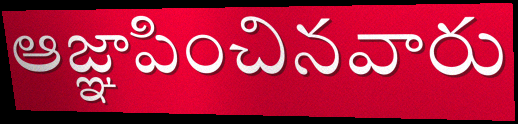
ఆజ్ఞాపించినవారు